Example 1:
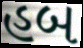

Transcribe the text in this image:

હબ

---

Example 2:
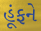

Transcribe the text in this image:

હૂંફને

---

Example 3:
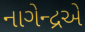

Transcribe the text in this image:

નાગેન્દ્રએ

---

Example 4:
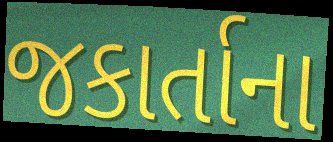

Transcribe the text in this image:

જકાર્તાના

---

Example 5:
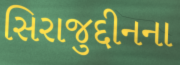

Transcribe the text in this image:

સિરાજુદ્દીનના